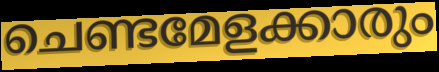
ചെണ്ടമേളക്കാരും